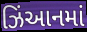
ઝિંઆનમાં